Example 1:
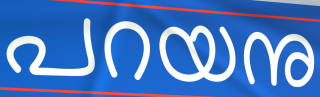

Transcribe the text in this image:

പറയനു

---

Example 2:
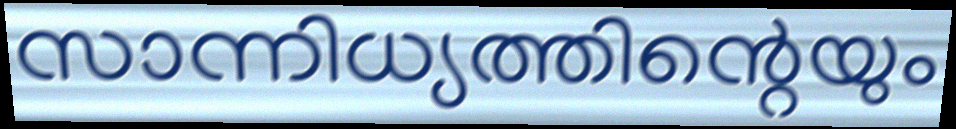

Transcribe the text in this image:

സാന്നിധ്യത്തിന്റെയും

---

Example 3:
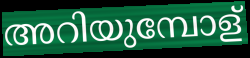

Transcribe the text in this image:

അറിയുമ്പോള്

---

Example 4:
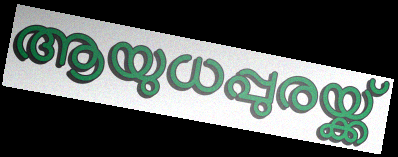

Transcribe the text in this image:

ആയുധപ്പുരയ്ക്ക്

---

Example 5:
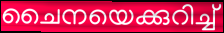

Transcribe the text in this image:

ചൈനയെക്കുറിച്ച്